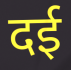
दई